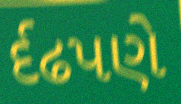
ર્દઢપણે